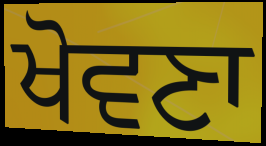
ਖੋਵਣਾ